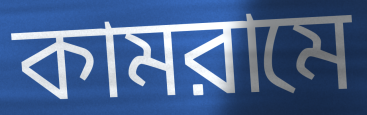
কামরামে